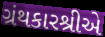
ગ્રંથકારશ્રીએ